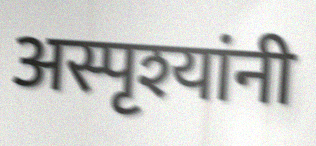
अस्पृश्यांनी